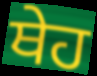
ਥੇਹ